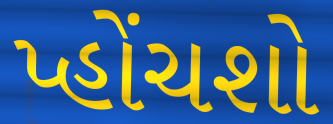
પ્હોંચશો